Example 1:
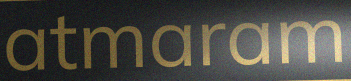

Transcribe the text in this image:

atmaram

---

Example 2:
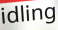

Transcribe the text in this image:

idling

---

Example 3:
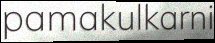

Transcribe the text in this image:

pamakulkarni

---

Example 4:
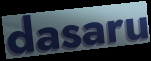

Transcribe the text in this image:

dasaru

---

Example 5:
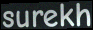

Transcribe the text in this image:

surekh